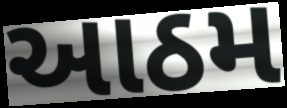
આઠમ